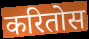
करितोस